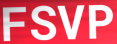
FSVP